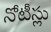
నోటీస్లు